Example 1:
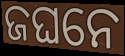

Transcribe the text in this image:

ଜଘନେ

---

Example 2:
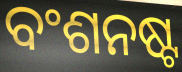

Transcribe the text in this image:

ବଂଶନଷ୍ଟ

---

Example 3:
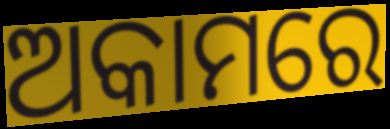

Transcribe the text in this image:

ଅକାମରେ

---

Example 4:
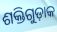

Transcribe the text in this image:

ଶକ୍ତିଗୁଡ଼ାକ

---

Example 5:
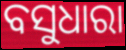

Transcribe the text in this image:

ବସୁଧାରା